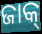
ଜାକ୍